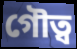
গৌত্ব